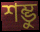
শম্ভু